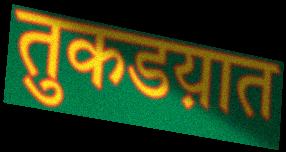
तुकडय़ात